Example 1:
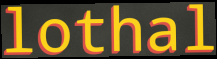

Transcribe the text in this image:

lothal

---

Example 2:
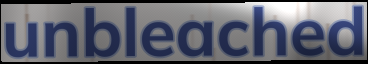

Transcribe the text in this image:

unbleached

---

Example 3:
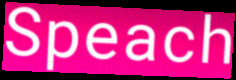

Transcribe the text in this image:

Speach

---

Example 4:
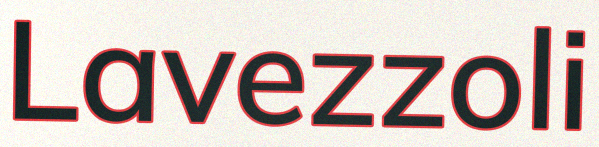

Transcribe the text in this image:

Lavezzoli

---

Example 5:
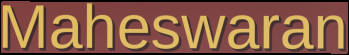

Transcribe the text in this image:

Maheswaran